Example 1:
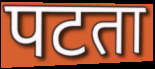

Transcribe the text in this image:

पटता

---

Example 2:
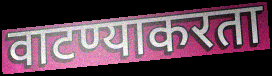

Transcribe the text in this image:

वाटण्याकरता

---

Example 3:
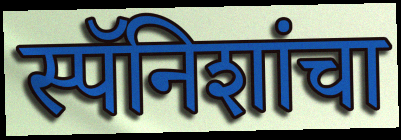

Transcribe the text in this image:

स्पॅनिशांचा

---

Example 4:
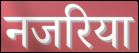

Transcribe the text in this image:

नजरिया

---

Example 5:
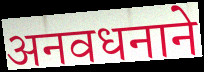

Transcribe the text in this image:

अनवधनाने